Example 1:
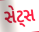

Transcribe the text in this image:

સેટ્સ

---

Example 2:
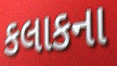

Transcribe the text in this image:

કલાકના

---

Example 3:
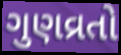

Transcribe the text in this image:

ગુણવ્રતો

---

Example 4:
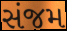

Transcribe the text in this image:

સંજમ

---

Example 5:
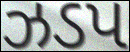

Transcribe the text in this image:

ઝડપ